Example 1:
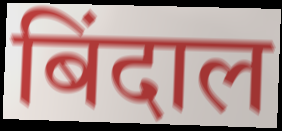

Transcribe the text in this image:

बिंदाल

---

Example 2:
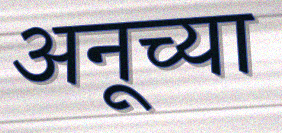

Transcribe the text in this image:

अनूच्या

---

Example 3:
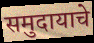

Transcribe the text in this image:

समुदायाचे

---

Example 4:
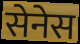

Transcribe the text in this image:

सेनेस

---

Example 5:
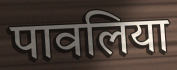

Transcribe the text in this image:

पावलिया